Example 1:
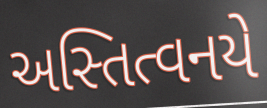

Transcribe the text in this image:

અસ્તિત્વનયે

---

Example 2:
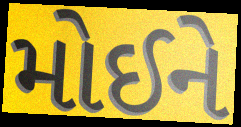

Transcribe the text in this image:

મોઈને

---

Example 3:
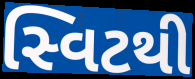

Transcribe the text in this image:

સ્વિટથી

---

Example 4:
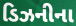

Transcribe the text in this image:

ડિઝનીના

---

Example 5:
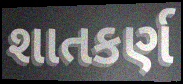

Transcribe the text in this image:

શાતકર્ણ